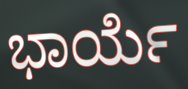
ಭಾರ್ಯೆ